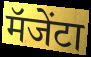
मॅजेंटा